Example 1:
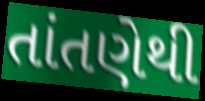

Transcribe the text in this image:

તાંતણેથી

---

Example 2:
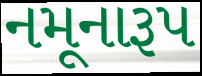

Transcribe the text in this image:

નમૂનારૂપ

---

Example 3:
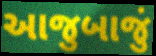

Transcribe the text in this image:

આજુબાજું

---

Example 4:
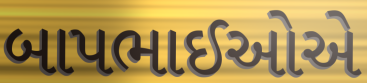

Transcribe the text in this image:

બાપભાઈઓએ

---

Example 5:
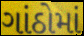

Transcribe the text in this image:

ગાંઠોમાં